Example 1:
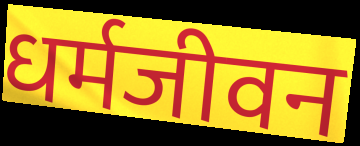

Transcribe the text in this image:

धर्मजीवन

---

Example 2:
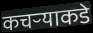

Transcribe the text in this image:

कचऱ्याकडे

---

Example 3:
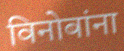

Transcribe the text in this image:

विनोबांना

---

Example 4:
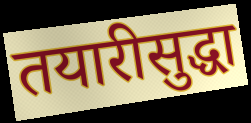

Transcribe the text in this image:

तयारीसुद्धा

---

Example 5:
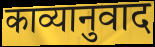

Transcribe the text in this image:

काव्यानुवाद